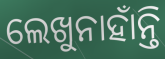
ଲେଖୁନାହାଁନ୍ତି